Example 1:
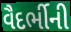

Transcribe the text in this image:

વૈદર્ભીની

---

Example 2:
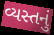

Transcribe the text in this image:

વ્યસ્તનું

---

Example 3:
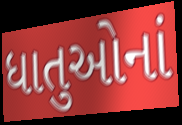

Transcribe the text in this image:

ધાતુઓનાં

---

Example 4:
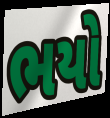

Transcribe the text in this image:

ભયો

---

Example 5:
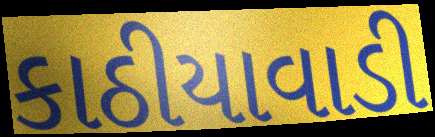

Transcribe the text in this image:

કાઠીયાવાડી